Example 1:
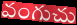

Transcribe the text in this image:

వంగుచు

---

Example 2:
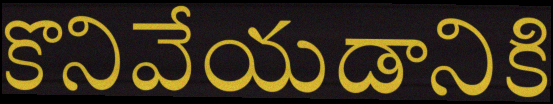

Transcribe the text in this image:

కొనివేయడానికి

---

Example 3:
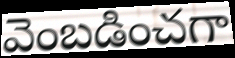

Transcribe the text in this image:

వెంబడించగా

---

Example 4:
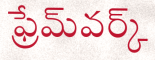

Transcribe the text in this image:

ఫ్రేమ్‌వర్క్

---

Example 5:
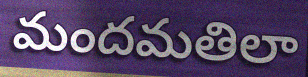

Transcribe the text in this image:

మందమతిలా